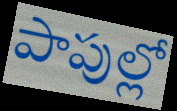
పాపుల్లో